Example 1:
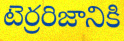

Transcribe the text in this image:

టెర్రరిజానికి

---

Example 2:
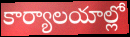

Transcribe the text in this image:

కార్యాలయాల్లో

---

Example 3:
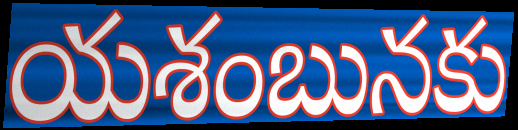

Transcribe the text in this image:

యశంబునకు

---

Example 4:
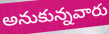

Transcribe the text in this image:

అనుకున్నవారు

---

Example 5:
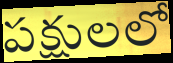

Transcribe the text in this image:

పక్షులలో